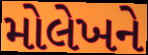
મોલેખને